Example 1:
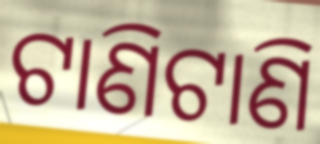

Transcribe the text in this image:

ଟାଣିଟାଣି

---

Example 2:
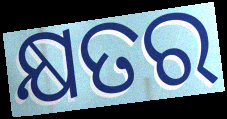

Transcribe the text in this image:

କ୍ଷତର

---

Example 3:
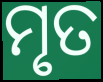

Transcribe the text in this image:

ମୃତ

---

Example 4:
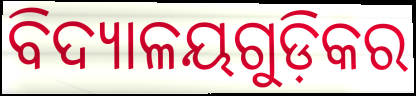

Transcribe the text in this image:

ବିଦ୍ୟାଳୟଗୁଡ଼ିକର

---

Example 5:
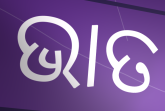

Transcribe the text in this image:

ଭାତ